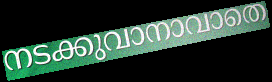
നടക്കുവാനാവാതെ